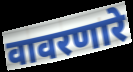
वावरणारे